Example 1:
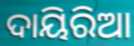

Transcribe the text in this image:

ଦାୟିରିଆ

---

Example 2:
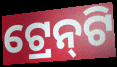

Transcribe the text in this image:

ଟ୍ରେନ୍‌ଟି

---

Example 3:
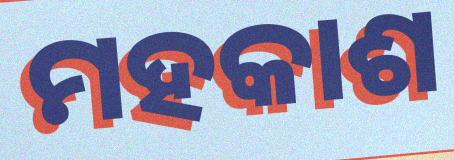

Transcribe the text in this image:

ମହକାଶ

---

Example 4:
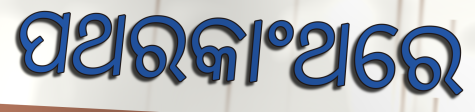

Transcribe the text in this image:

ପଥରକାଂଥରେ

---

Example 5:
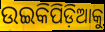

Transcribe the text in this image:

ଉଇକିପିଡ଼ିଆକୁ